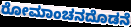
ರೋಮಾಂಚನದೊಡನೆ